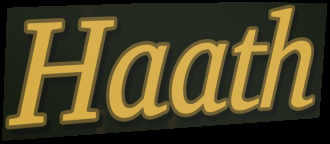
Haath